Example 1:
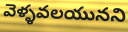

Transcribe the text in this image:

వెళ్ళవలయునని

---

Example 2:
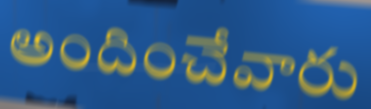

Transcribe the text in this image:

అందించేవారు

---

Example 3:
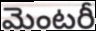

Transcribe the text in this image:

మెంటరీ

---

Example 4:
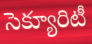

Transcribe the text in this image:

సెక్యూరిటీ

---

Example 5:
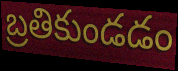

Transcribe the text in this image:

బ్రతికుండడం